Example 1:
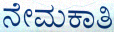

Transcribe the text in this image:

ನೇಮಕಾತಿ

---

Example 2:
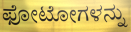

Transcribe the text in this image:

ಫೋಟೋಗಳನ್ನು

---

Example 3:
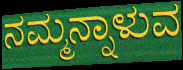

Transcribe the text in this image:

ನಮ್ಮನ್ನಾಳುವ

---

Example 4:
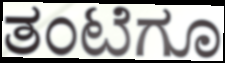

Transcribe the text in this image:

ತಂಟೆಗೂ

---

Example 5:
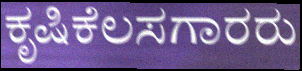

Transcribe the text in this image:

ಕೃಷಿಕೆಲಸಗಾರರು